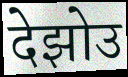
देझोउ